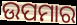
ଉପମାର